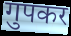
गुपकर